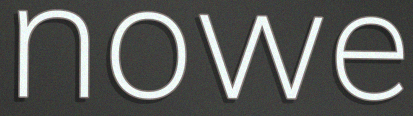
nowe